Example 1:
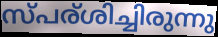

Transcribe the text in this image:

സ്പര്ശിച്ചിരുന്നു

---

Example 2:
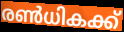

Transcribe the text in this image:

രൺധികക്ക്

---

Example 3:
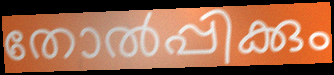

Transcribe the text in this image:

തോൽപ്പിക്കും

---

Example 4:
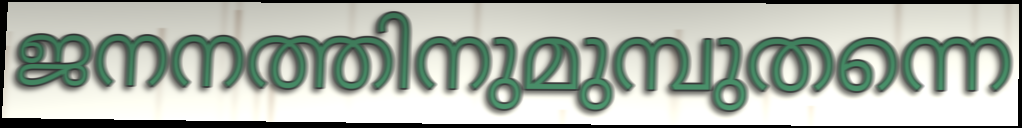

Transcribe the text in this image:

ജനനത്തിനുമുമ്പുതന്നെ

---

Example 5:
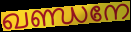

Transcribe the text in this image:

ഖണ്ഡനേ